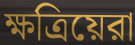
ক্ষত্রিয়েরা